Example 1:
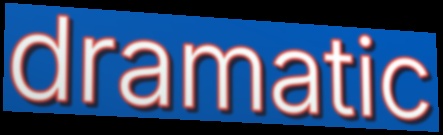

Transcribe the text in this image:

dramatic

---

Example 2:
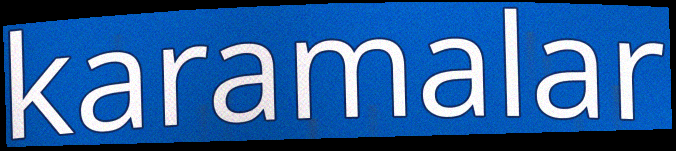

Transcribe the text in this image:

karamalar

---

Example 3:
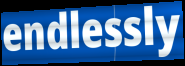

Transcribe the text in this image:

endlessly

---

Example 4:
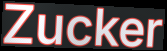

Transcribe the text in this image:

Zucker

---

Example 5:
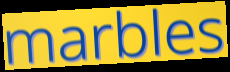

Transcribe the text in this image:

marbles